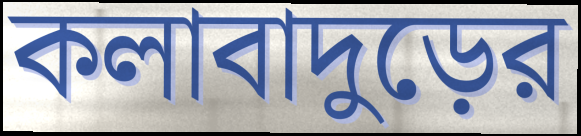
কলাবাদুড়ের